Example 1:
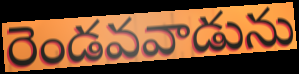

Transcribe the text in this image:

రెండవవాడును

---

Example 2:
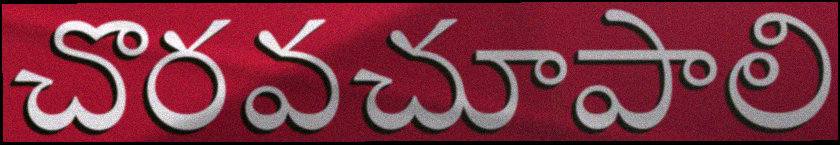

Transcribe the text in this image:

చొరవచూపాలి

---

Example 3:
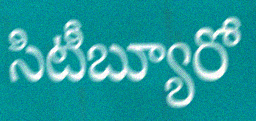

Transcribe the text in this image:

సిటీబ్యూరో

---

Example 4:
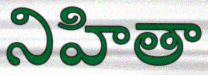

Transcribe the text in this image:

నిహితా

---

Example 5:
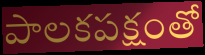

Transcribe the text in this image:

పాలకపక్షంతో